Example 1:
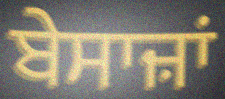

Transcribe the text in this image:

ਬੇਸਾਜ਼ਾਂ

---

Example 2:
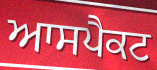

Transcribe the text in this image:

ਆਸਪੈਕਟ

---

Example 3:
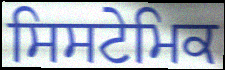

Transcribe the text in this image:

ਸਿਸਟੇਮਿਕ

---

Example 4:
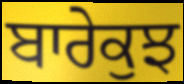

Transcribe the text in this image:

ਬਾਰੇਕੁਝ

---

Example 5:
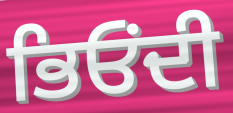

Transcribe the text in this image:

ਭਿਓਂਦੀ